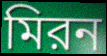
মিরন